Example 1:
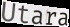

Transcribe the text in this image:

Utara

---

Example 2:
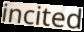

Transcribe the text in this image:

incited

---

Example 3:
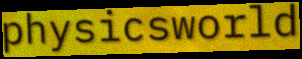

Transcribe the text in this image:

physicsworld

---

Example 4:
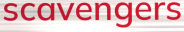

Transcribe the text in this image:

scavengers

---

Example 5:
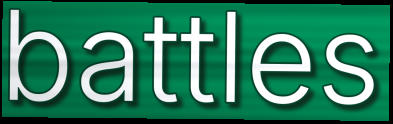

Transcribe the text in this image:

battles